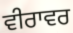
ਵੀਰਾਵਰ